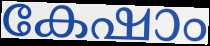
കേഷാം